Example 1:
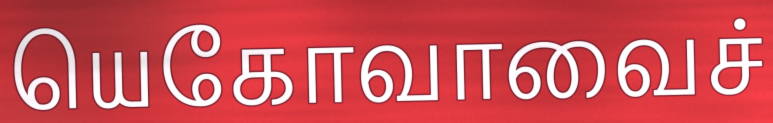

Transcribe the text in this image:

யெகோவாவைச்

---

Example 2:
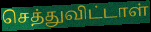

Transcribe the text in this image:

செத்துவிட்டாள்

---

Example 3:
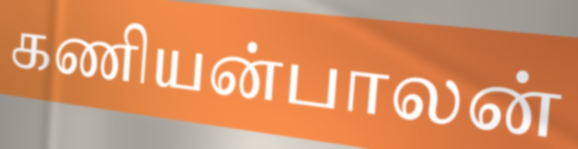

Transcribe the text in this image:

கணியன்பாலன்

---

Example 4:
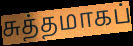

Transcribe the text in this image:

சுத்தமாகப்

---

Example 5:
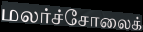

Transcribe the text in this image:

மலர்ச்சோலைக்